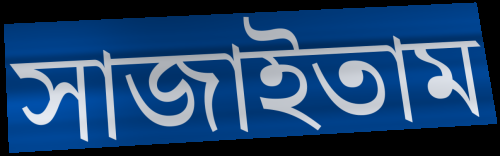
সাজাইতাম